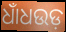
ଧାଁଧଉଡ଼